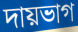
দায়ভাগ